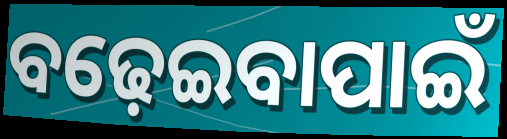
ବଢ଼େଇବାପାଇଁ